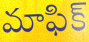
మాఫిక్